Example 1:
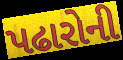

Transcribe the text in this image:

પઢારોની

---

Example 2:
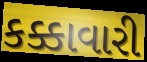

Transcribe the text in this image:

કક્કાવારી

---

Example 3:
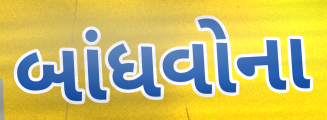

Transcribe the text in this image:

બાંધવોના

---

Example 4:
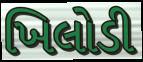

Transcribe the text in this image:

ખિલોડી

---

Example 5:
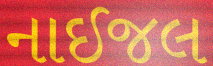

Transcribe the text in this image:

નાઈજલ